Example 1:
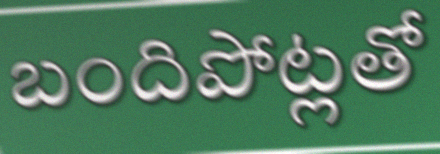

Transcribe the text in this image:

బందిపోట్లతో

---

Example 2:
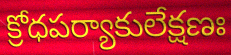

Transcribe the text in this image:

క్రోధపర్యాకులేక్షణః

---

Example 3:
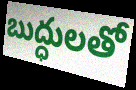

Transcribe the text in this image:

బుద్ధులతో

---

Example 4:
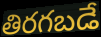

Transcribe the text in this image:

తిరగబడే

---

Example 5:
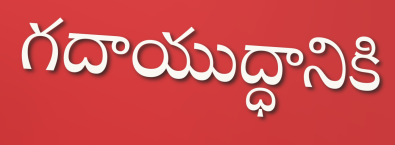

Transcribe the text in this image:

గదాయుద్ధానికి